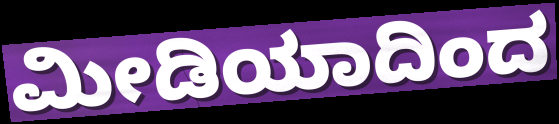
ಮೀಡಿಯಾದಿಂದ